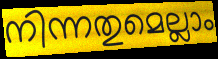
നിന്നതുമെല്ലാം